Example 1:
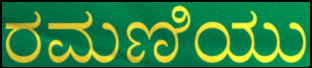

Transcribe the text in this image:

ರಮಣಿಯು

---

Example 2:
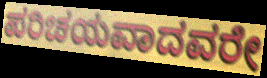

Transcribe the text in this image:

ಪರಿಚಯವಾದವರೇ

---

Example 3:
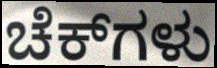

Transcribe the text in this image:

ಚೆಕ್‌ಗಳು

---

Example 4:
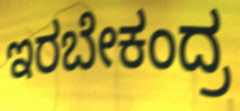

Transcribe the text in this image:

ಇರಬೇಕಂದ್ರ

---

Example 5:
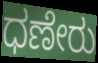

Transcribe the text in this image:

ಧಣೇರು